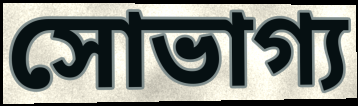
সোভাগ্য